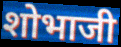
शोभाजी